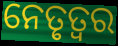
ନେତୃତ୍ୱର